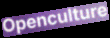
Openculture